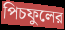
পিচফুলের